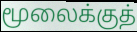
மூலைக்குத்